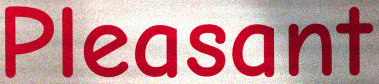
Pleasant